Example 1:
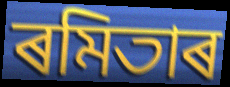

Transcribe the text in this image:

ৰমিতাৰ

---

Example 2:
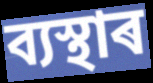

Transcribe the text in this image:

ব্যস্থাৰ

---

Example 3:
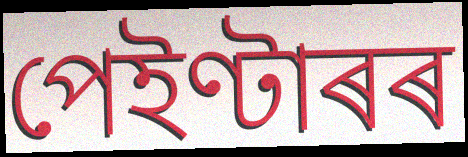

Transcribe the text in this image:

পেইণ্টাৰৰ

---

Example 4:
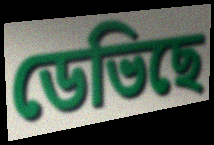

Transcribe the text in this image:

ডেভিছে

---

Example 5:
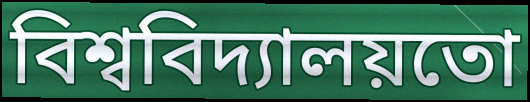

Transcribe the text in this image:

বিশ্ববিদ্যালয়তো